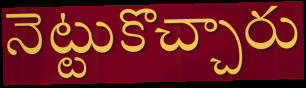
నెట్టుకొచ్చారు